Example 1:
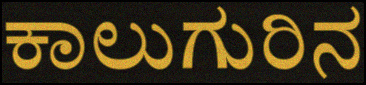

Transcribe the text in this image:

ಕಾಲುಗುರಿನ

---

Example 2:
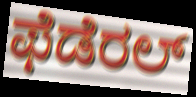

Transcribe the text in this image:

ಫೆಡೆರಲ್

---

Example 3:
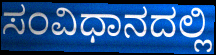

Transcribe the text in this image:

ಸಂವಿಧಾನದಲ್ಲಿ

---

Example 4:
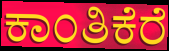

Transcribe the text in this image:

ಕಾಂತಿಕೆರೆ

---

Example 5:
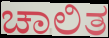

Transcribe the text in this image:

ಚಾಲಿತ